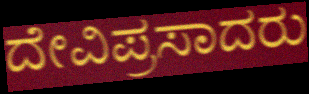
ದೇವಿಪ್ರಸಾದರು